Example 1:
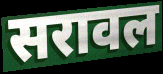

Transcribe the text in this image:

सरावल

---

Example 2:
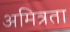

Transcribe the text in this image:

अमित्रता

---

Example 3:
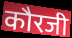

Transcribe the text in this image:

कौरजी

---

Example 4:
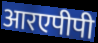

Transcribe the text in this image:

आरएपीपी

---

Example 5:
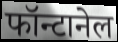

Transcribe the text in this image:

फॉन्टानेल